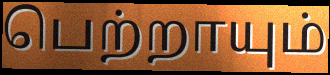
பெற்றாயும்